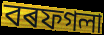
বৰফগলা